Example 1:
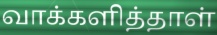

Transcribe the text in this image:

வாக்களித்தாள்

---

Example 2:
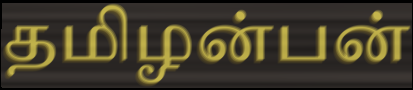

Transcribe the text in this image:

தமிழன்பன்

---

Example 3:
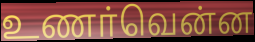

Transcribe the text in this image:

உணர்வென்ன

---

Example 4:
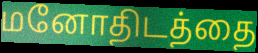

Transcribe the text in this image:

மனோதிடத்தை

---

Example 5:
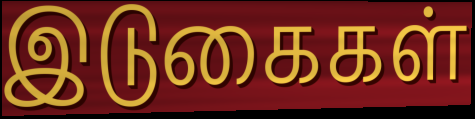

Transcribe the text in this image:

இடுகைகள்